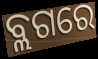
ବ୍ଲଗରେ